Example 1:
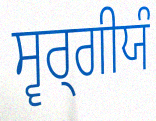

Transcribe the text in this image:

ਸ੍ਵਰ੍ਗੀਯੰ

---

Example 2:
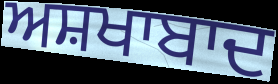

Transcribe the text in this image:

ਅਸ਼ਖਾਬਾਦ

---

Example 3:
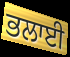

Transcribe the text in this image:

ਭਲਾਈ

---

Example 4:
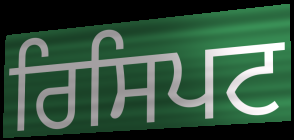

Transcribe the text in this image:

ਰਿਸਿਪਟ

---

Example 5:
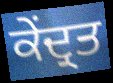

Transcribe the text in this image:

ਕੇਂਦ੍ਰਤ